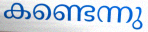
കണ്ടെന്നു